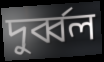
দুর্ব্বল